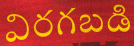
విరగబడి